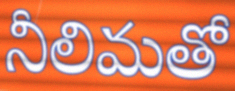
నీలిమతో